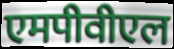
एमपीवीएल